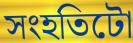
সংহতিটো